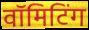
वॉमिटिंग